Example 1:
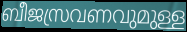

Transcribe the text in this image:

ബീജസ്രവണവുമുള്ള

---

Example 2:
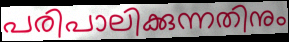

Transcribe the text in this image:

പരിപാലിക്കുന്നതിനും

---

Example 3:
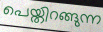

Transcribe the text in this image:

പെയ്തിറങ്ങുന്ന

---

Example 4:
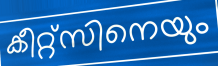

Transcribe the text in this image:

കീറ്റ്സിനെയും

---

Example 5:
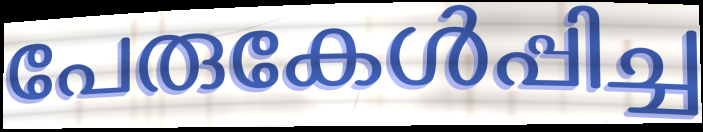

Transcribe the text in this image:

പേരുകേൾപ്പിച്ച